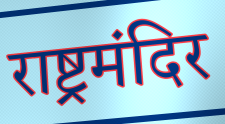
राष्ट्रमंदिर